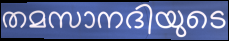
തമസാനദിയുടെ